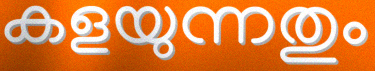
കളയുന്നതും